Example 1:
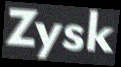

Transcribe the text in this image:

Zysk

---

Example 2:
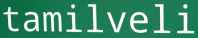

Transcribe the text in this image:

tamilveli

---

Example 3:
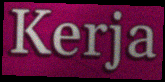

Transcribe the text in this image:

Kerja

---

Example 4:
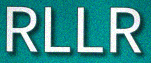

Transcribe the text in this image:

RLLR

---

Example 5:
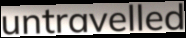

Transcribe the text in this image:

untravelled